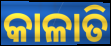
କାଳାତି